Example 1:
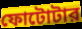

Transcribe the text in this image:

ফোটোটার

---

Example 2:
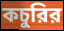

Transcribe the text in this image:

কচুরির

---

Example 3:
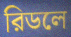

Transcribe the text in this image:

রিডলে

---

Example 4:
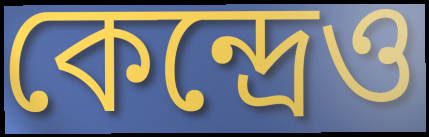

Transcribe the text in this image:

কেন্দ্রেও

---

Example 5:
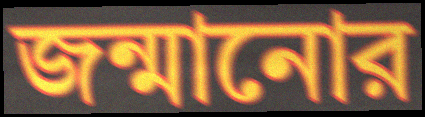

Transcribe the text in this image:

জন্মানোর